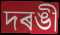
দৰঙী